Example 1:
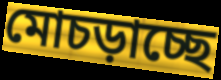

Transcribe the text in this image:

মোচড়াচ্ছে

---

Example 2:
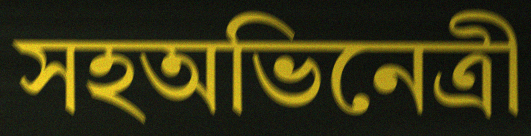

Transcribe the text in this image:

সহঅভিনেত্রী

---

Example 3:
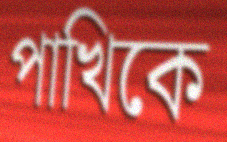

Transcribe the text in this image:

পাখিকে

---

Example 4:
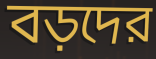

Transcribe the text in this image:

বড়দের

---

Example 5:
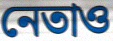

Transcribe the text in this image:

নেতাও